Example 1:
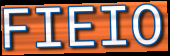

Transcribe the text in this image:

FIEIO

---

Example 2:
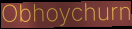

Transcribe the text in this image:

Obhoychurn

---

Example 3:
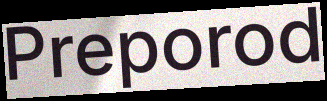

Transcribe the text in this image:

Preporod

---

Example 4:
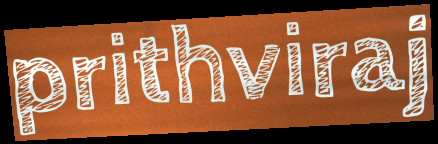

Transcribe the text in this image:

prithviraj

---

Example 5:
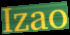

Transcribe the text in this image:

Izao